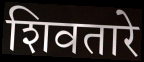
शिवतारे